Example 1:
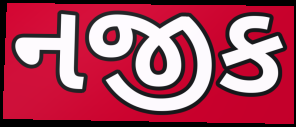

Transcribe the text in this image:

નજીક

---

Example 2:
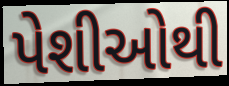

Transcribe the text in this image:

પેશીઓથી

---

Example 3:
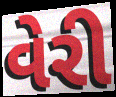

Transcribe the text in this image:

વેરી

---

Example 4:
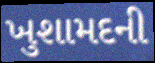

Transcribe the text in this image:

ખુશામદની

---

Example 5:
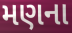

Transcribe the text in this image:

મણના